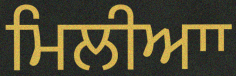
ਮਿਲੀਆਾ